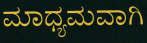
ಮಾಧ್ಯಮವಾಗಿ